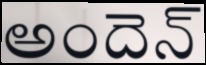
అందెన్